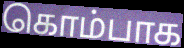
கொம்பாக